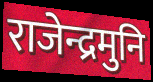
राजेन्द्रमुनि